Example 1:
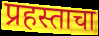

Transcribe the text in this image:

प्रहस्ताचा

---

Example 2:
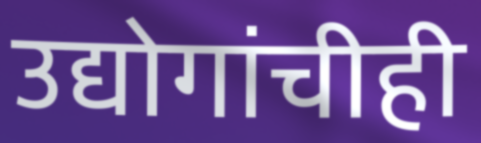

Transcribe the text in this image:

उद्योगांचीही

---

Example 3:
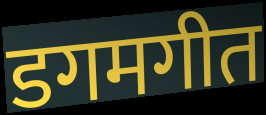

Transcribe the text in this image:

डगमगीत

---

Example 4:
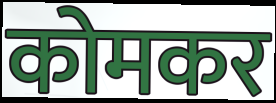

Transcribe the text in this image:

कोमकर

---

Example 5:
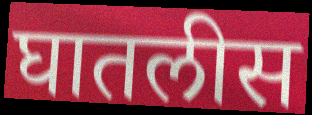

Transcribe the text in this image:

घातलीस